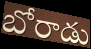
బోరాడు